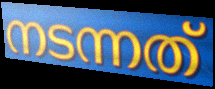
നടന്നത്